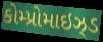
કોમ્પ્રોમાઇઝ્ડ